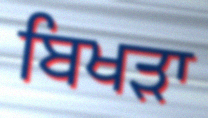
ਬਿਖੜਾ